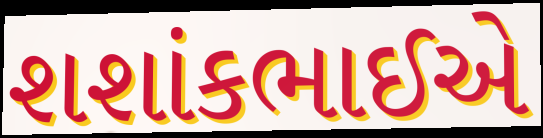
શશાંકભાઈએ